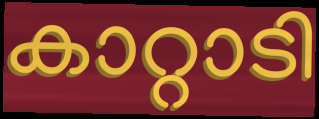
കാറ്റാടി